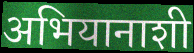
अभियानाशी